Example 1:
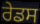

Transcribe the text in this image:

ਰੇਡਸ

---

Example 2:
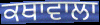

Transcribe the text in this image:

ਕਥਾਵਾਲਾ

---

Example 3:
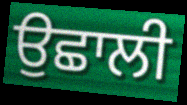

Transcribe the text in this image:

ਉਛਾਲੀ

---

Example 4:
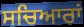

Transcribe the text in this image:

ਸਚਿਆਰਾਂ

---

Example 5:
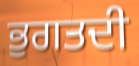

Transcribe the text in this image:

ਭੁਗਤਦੀ